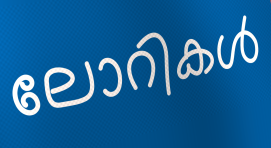
ലോറികൾ